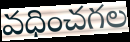
వధించగల